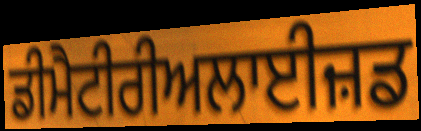
ਡੀਮੈਟੀਰੀਅਲਾਈਜ਼ਡ